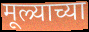
मूल्याच्या